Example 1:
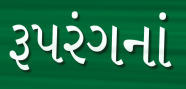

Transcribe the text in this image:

રૂપરંગનાં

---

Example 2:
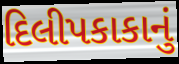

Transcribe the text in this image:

દિલીપકાકાનું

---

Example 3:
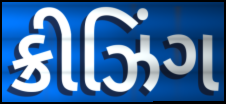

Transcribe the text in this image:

ક્રીઝિંગ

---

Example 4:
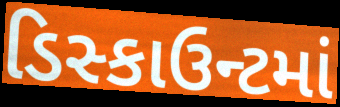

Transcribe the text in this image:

ડિસ્કાઉન્ટમાં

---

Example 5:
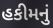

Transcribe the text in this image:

હકીમનું